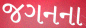
જગનના